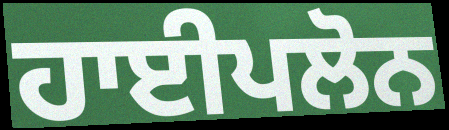
ਹਾਈਪਲੋਨ